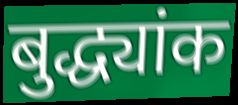
बुद्ध्यांक